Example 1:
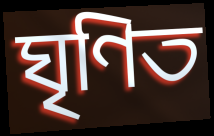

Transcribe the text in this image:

ঘৃণিত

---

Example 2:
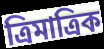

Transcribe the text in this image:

ত্রিমাত্রিক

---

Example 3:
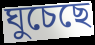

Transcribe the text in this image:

ঘুচেছে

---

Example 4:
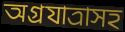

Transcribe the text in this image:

অগ্রযাত্রাসহ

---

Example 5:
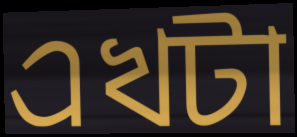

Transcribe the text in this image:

এখটা